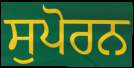
ਸੁਪੋਰਨ